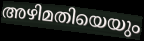
അഴിമതിയെയും